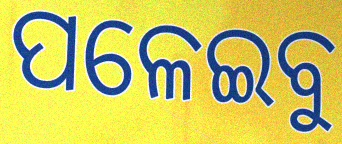
ପଳେଇବୁ